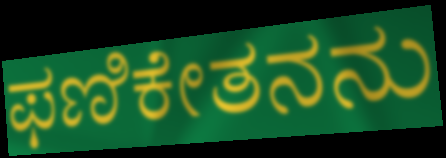
ಫಣಿಕೇತನನು